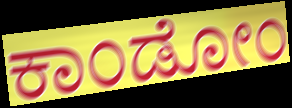
ಕಾಂಡೋಂ